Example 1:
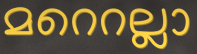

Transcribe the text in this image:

മറെറല്ലാ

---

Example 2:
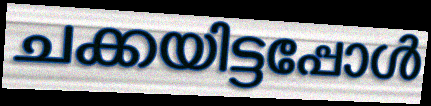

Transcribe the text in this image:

ചക്കയിട്ടപ്പോൾ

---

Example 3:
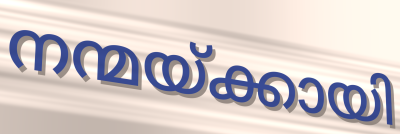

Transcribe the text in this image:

നന്മയ്ക്കായി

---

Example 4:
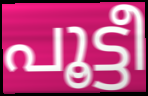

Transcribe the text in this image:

പൂട്ടീ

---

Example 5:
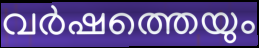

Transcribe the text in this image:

വർഷത്തെയും